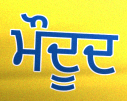
ਮੌਦੂਦ